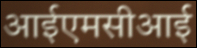
आईएमसीआई